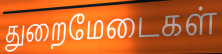
துறைமேடைகள்